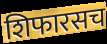
शिफारसच